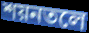
শয়নতলে